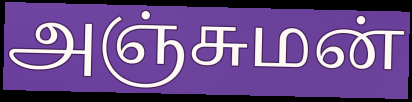
அஞ்சுமன்